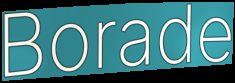
Borade